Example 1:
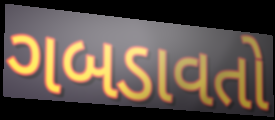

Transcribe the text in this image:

ગબડાવતો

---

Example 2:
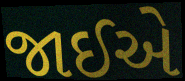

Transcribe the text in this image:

જાઈએ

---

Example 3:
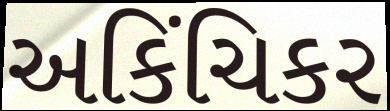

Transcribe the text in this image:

અકિંચિકર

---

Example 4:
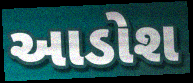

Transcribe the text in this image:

આડોશ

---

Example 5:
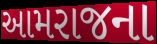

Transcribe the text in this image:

આમરાજના